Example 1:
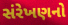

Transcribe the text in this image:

સંરેખણનો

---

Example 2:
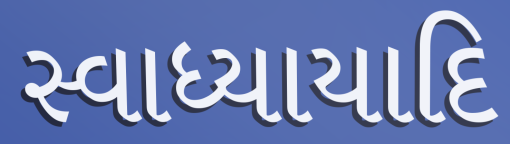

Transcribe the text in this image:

સ્વાધ્યાયાદિ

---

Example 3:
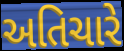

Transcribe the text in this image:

અતિચારે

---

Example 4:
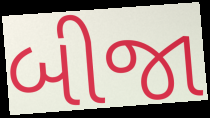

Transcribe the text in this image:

બીજા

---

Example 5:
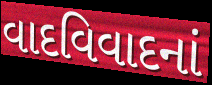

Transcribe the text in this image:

વાદવિવાદનાં